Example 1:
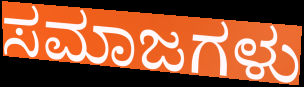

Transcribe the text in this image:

ಸಮಾಜಗಳು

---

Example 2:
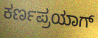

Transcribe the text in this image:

ಕರ್ಣಪ್ರಯಾಗ್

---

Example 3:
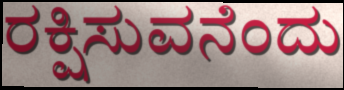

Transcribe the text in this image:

ರಕ್ಷಿಸುವನೆಂದು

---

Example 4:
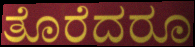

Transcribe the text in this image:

ತೊರೆದರೂ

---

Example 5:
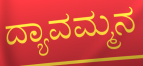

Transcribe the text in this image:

ದ್ಯಾವಮ್ಮನ